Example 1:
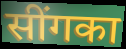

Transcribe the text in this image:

सींगका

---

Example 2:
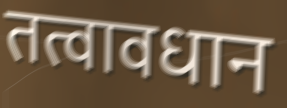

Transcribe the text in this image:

तत्‍वावधान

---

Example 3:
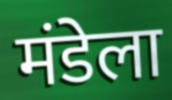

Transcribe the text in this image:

मंडेला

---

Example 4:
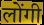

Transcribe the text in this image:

लोंगी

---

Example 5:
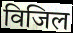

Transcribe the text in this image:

विजिल